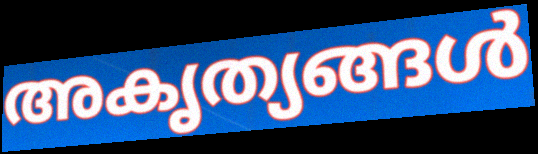
അകൃത്യങ്ങൾ